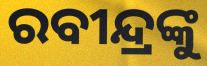
ରବୀନ୍ଦ୍ରଙ୍କୁ